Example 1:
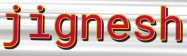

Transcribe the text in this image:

jignesh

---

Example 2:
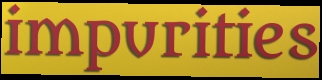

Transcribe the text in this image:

impurities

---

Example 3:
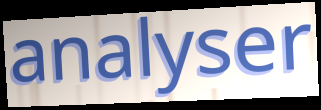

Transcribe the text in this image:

analyser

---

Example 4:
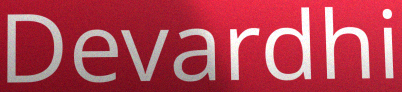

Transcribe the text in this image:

Devardhi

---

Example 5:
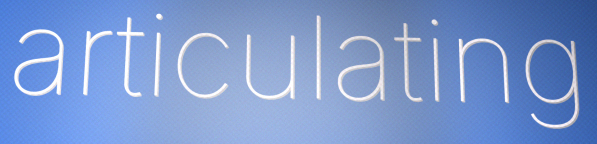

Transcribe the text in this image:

articulating